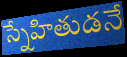
స్నేహితుడనే